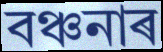
বঞ্চনাৰ